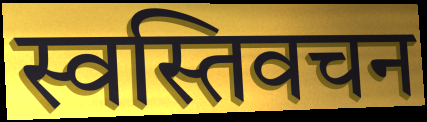
स्वस्तिवचन